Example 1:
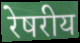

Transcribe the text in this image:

रेषरीय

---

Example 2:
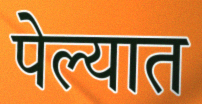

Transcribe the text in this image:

पेल्यात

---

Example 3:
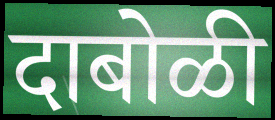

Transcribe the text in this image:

दाबोळी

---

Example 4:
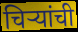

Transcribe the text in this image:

चिऱ्यांची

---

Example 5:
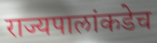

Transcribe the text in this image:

राज्यपालांकडेच